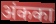
अंकका